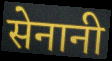
सेनानी